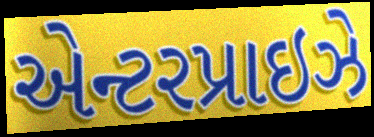
એન્ટરપ્રાઇઝે